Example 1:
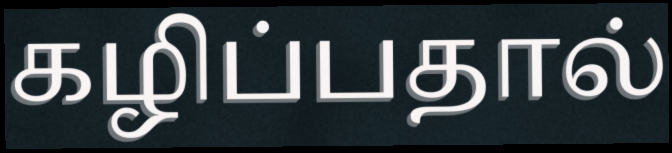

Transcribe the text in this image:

கழிப்பதால்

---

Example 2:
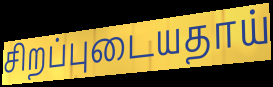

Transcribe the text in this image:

சிறப்புடையதாய்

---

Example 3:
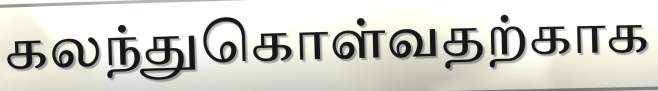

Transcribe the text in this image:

கலந்துகொள்வதற்காக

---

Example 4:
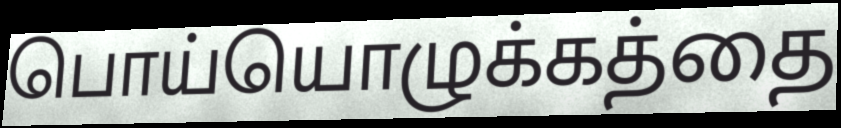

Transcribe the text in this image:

பொய்யொழுக்கத்தை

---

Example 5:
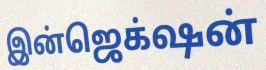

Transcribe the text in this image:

இன்ஜெக்‌ஷன்